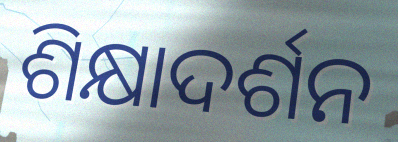
ଶିକ୍ଷାଦର୍ଶନ